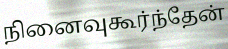
நினைவுகூர்ந்தேன்